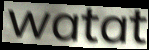
watat